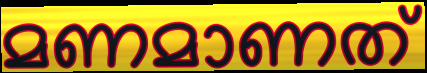
മണമാണത്